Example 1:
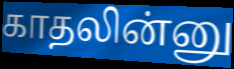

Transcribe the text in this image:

காதலின்னு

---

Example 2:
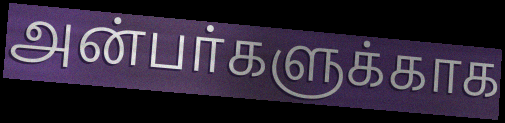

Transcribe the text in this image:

அன்பர்களுக்காக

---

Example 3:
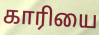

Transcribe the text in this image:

காரியை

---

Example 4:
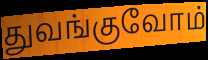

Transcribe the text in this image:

துவங்குவோம்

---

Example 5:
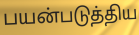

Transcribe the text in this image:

பயன்படுத்திய